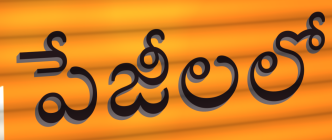
పేజీలలో